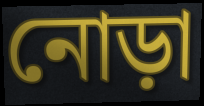
নোড়া